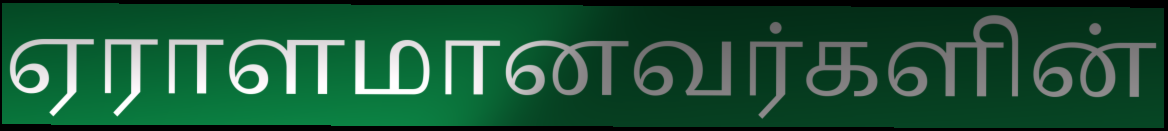
ஏராளமானவர்களின்